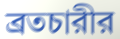
ব্রতচারীর